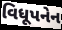
વિધૂપનેન